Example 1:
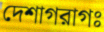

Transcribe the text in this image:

দেশাগরাগঃ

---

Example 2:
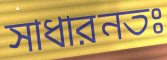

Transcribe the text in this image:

সাধারনতঃ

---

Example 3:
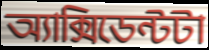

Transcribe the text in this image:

অ্যাক্সিডেন্টটা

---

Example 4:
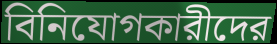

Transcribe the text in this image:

বিনিযোগকারীদের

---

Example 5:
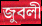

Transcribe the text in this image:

জুবলী